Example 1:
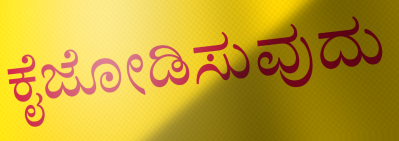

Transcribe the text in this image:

ಕೈಜೋಡಿಸುವುದು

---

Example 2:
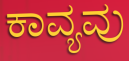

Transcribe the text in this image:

ಕಾವ್ಯವು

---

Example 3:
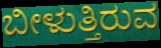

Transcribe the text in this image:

ಬೀಳುತ್ತಿರುವ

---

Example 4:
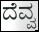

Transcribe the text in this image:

ದೆವ್ವ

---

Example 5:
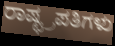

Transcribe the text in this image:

ರಾಷ್ಟ್ರಪತಿಗಳು